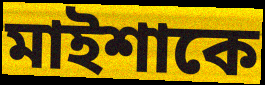
মাইশাকে